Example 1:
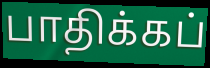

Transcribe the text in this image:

பாதிக்கப்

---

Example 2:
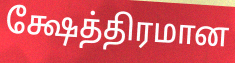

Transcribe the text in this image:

க்ஷேத்திரமான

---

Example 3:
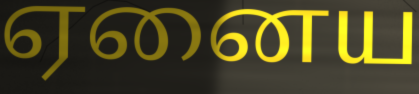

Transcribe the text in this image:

ஏனைய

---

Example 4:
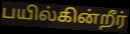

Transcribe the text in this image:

பயில்கின்றீர்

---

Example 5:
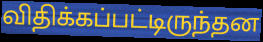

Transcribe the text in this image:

விதிக்கப்பட்டிருந்தன